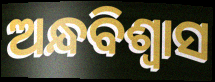
ଅନ୍ଧବିଶ୍ଵାସ